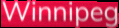
Winnipeg